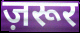
ज़रूर